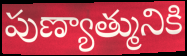
పుణ్యాత్మునికి